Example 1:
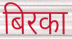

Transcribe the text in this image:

बिरका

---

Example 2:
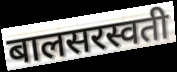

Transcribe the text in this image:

बालसरस्वती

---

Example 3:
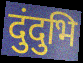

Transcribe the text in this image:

दुंदुभि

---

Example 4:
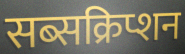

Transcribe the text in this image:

सब्सक्रिप्शन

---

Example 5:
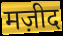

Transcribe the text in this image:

मज़ीद